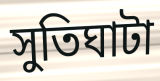
সুতিঘাটা